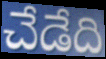
చేడేది